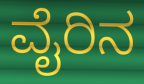
ವೈರಿನ